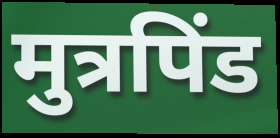
मुत्रपिंड